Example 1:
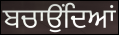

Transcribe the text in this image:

ਬਚਾਉਂਦਿਆਂ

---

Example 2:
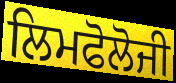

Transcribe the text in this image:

ਲਿਮਫੋਲੋਜੀ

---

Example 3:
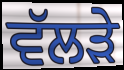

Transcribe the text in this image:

ਵੱਲੜੇ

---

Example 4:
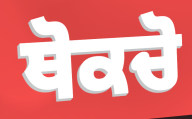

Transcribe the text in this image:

ਥੋਕਚੋ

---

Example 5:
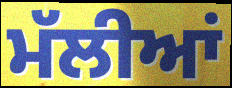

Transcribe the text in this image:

ਮੱਲੀਆਂ